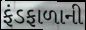
ફંડફાળાની